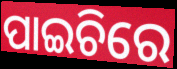
ପାଇଚିରେ